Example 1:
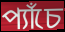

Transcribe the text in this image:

প্যাঁচে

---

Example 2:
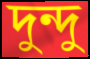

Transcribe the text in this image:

দুন্দু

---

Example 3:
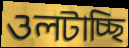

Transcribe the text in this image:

ওলটাচ্ছি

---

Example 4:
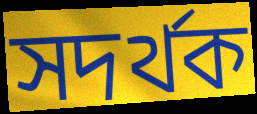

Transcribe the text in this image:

সদর্থক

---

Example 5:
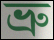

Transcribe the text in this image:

ভ্রু